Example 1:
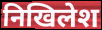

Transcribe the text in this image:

निखिलेश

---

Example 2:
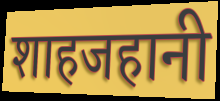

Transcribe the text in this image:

शाहजहानी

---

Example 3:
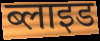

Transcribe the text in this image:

ब्लाइड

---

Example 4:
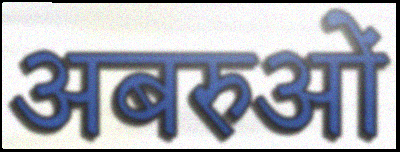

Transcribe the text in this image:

अबरुओं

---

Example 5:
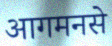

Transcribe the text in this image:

आगमनसे